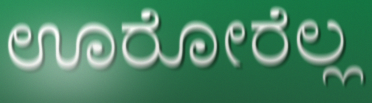
ಊರೋರೆಲ್ಲ